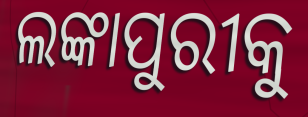
ଲଙ୍କାପୁରୀକୁ